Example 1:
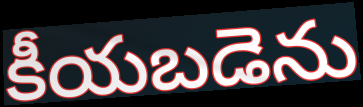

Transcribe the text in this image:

కీయబడెను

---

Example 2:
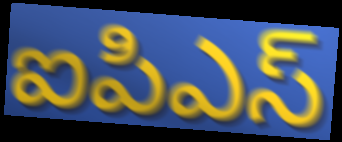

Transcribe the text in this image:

ఐపిఎస్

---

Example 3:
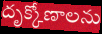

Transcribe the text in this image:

దృక్కోణాలను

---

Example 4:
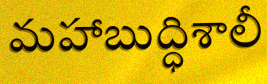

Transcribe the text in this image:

మహాబుద్ధిశాలీ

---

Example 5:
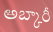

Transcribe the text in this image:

అబ్కారీ